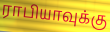
ராபியாவுக்கு